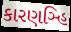
કારણઞ્હિ